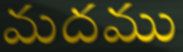
మదము